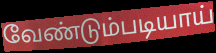
வேண்டும்படியாய்